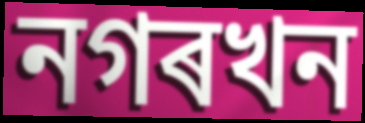
নগৰখন